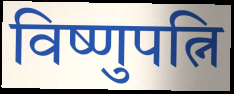
विष्णुपत्नि